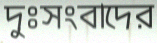
দুঃসংবাদের